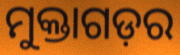
ମୁକ୍ତାଗଡ଼ର